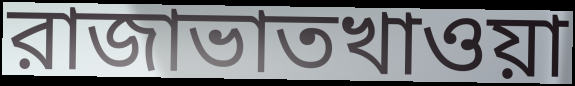
রাজাভাতখাওয়া